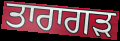
ਤਾਰਾਗੜ